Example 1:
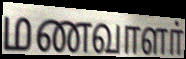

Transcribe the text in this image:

மணவாளர்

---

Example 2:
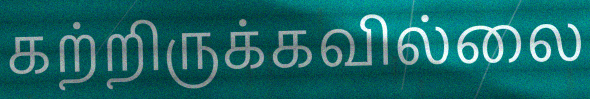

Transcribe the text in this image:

கற்றிருக்கவில்லை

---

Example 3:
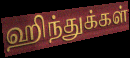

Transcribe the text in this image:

ஹிந்துக்கள்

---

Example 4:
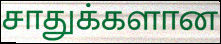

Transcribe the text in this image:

சாதுக்களான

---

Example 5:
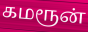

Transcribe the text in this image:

கமரூன்